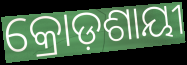
କ୍ରୋଡ଼ଶାୟୀ